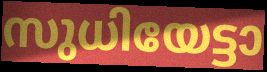
സുധിയേട്ടാ